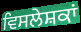
ਵਿਸਲੇਸ਼ਕਾਂ